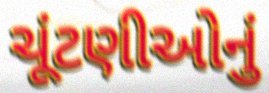
ચૂંટણીઓનું